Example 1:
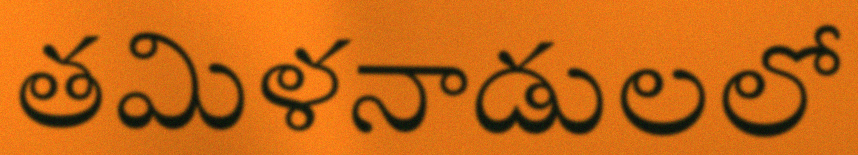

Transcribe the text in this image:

తమిళనాడులలో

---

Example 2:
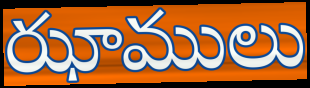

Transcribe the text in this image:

ఝాములు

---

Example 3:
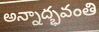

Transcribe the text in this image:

అన్నాద్భవంతి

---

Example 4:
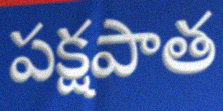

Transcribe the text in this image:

పక్షపాత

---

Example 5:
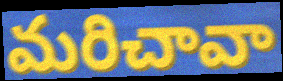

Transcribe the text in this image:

మరిచావా